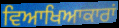
ਵਿਆਖਿਆਕਾਰਾਂ